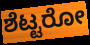
ಶೆಟ್ಟರೋ